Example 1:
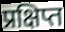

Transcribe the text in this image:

प्रक्षिप्त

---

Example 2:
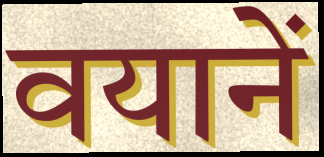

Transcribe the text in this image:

वयानें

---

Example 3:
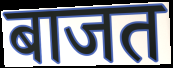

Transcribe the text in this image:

बाजत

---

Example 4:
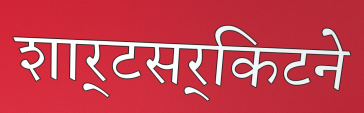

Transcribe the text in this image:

शार्टसर्किटने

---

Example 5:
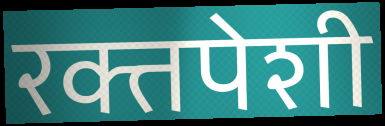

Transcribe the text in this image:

रक्तपेशी